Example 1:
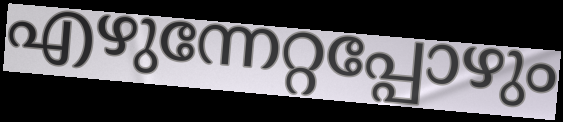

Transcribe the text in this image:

എഴുന്നേറ്റപ്പോഴും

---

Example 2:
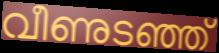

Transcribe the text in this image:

വീണുടഞ്ഞ്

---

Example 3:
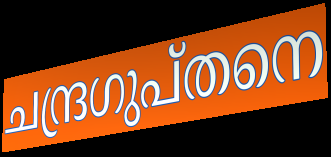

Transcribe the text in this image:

ചന്ദ്രഗുപ്തനെ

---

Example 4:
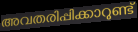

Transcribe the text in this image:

അവതരിപ്പിക്കാറുണ്ട്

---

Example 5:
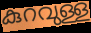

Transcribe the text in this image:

കുറവുള്ള